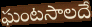
ఘంటసాలదే